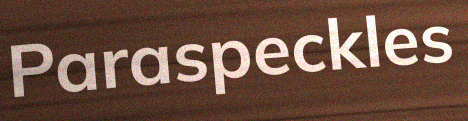
Paraspeckles